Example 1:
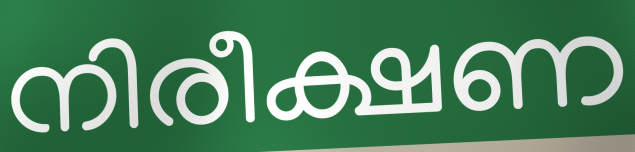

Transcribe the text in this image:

നിരീക്ഷണ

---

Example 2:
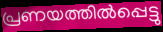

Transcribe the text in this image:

പ്രണയത്തിൽപ്പെട്ടു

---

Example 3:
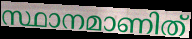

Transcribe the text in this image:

സ്ഥാനമാണിത്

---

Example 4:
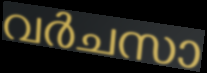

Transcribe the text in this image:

വർചസാ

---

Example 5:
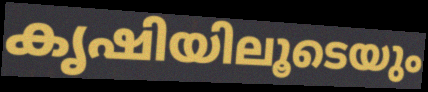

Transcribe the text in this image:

കൃഷിയിലൂടെയും